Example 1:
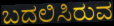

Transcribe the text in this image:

ಬದಲಿಸಿರುವ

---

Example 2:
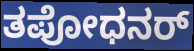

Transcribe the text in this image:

ತಪೋಧನರ್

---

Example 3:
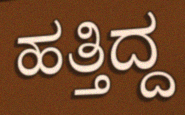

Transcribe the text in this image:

ಹತ್ತಿದ್ದ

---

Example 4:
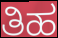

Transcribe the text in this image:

ತಿಹ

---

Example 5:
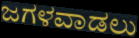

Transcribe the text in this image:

ಜಗಳವಾಡಲು